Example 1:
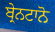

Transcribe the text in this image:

ਬ੍ਰੇਨਟਾਨੋ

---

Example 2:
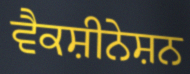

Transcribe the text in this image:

ਵੈਕਸ਼ੀਨੇਸ਼ਨ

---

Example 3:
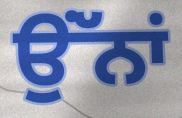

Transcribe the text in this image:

ਉਂੱਨਾਂ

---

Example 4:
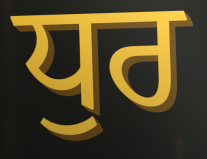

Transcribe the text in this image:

ਧੁਰ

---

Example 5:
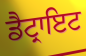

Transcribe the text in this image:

ਡੈਟ੍ਰਾਇਟ